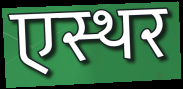
एस्थर